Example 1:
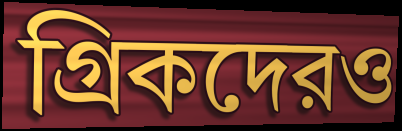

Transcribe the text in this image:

গ্রিকদেরও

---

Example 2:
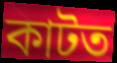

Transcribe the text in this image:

কাটত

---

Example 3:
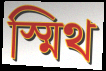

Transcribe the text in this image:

স্মিথ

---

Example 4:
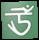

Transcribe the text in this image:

ঊঁ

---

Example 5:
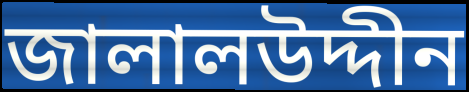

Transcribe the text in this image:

জালালউদ্দীন